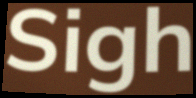
Sigh